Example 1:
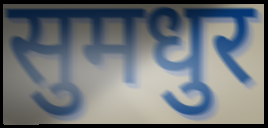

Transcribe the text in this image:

सुमधुर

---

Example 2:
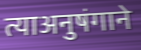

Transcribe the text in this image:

त्याअनुषंगाने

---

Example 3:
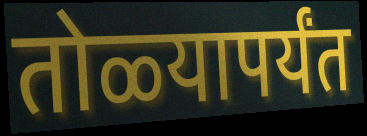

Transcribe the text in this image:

तोळ्यापर्यंत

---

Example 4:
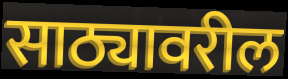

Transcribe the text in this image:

साठ्यावरील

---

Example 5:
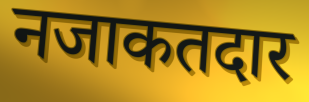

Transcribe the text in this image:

नजाकतदार